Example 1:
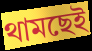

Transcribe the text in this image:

থামছেই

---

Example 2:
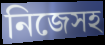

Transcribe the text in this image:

নিজেসহ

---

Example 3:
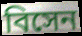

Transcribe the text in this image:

বিসেন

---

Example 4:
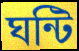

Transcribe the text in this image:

ঘন্টি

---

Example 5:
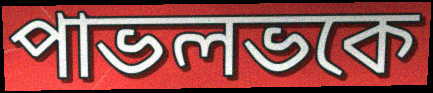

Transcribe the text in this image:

পাভলভকে